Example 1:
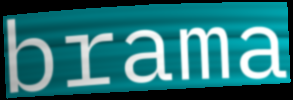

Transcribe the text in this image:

brama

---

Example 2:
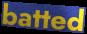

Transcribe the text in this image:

batted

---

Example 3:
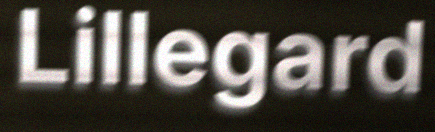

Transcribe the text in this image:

Lillegard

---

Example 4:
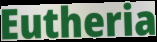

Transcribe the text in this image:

Eutheria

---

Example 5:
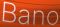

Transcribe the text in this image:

Bano